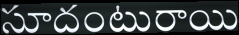
సూదంటురాయి